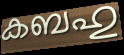
കബഹു